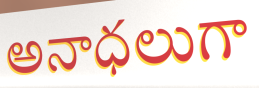
అనాధలుగా